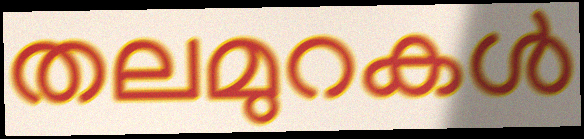
തലമുറകൾ